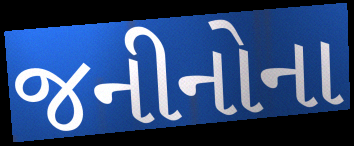
જનીનોના